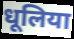
धूलिया